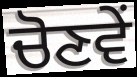
ਚੋਣਵੇਂ